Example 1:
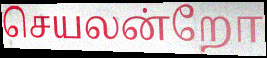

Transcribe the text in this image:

செயலன்றோ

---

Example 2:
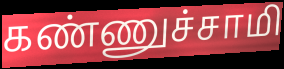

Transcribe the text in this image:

கண்ணுச்சாமி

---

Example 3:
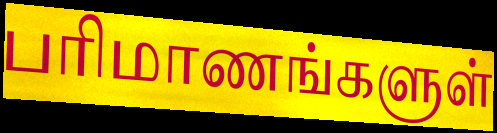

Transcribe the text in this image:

பரிமாணங்களுள்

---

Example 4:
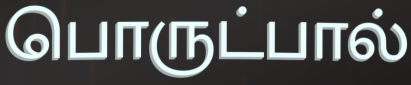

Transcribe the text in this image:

பொருட்பால்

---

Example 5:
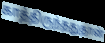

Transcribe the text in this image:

காத்திருந்ததுதான்